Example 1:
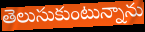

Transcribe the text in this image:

తెలుసుకుంటున్నాను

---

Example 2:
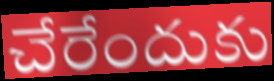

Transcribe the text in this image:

చేరేందుకు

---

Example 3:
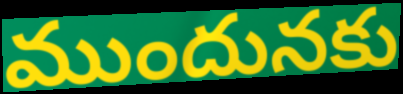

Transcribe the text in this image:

ముందునకు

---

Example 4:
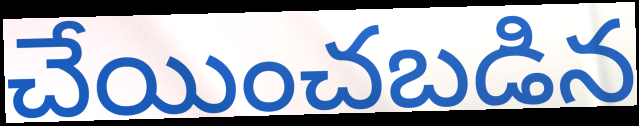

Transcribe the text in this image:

చేయించబడిన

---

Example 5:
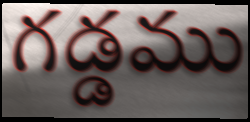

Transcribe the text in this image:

గడ్డము